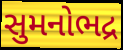
સુમનોભદ્ર